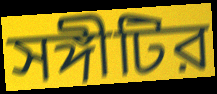
সঙ্গীটির